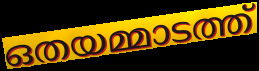
ഒതയമ്മാടത്ത്